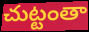
చుట్టంతా